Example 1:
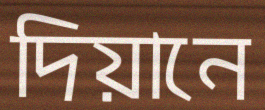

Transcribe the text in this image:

দিয়ানে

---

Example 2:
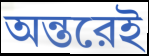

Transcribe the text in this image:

অন্তরেই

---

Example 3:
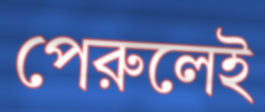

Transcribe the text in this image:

পেরুলেই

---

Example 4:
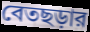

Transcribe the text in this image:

বেতছড়ার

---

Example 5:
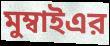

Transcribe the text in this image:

মুম্বাইএর